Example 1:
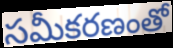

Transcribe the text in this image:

సమీకరణంతో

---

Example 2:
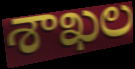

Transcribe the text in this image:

శాఖల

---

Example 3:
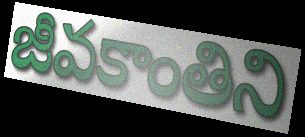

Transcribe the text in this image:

జీవకాంతిని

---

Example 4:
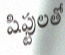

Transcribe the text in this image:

షిఫ్టులతో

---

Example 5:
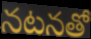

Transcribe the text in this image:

నటనతో